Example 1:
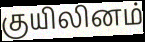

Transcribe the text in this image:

குயிலினம்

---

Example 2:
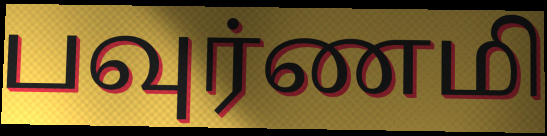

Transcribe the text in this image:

பவுர்ணமி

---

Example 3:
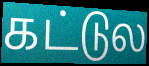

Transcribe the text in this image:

கட்டுல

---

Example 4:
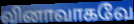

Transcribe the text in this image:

வினாவாகவே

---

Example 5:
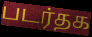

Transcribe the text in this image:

படர்தக